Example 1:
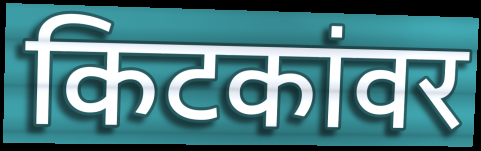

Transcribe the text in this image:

किटकांवर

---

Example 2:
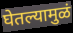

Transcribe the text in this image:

घेतल्यामुळं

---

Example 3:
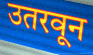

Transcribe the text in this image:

उतरवून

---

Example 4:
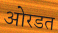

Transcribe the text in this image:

ओरडत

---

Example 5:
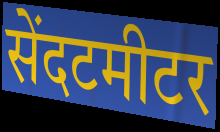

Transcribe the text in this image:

सेंदटमीटर